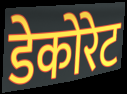
डेकोरेट